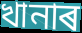
খানাৰ